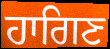
ਹਾਗਿਣ